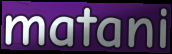
matani